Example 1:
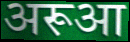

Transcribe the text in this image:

अरूआ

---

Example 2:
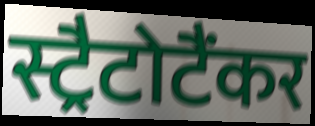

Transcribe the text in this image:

स्ट्रैटोटैंकर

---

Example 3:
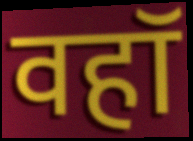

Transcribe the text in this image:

वहॉ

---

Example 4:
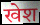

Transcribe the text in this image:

खेश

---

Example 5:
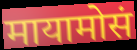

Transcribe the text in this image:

मायामोसं